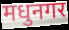
मधुनगर